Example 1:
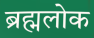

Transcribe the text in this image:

ब्रह्मलोक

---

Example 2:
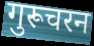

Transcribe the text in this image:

गुरूचरन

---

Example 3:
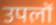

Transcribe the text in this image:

उपलों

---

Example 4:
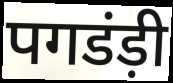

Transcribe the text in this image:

पगडंड़ी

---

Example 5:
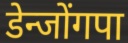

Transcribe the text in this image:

डेन्जोंगपा